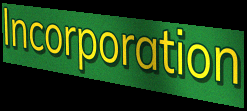
Incorporation